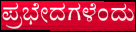
ಪ್ರಭೇದಗಳೆಂದು